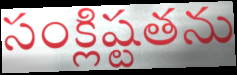
సంక్లిష్టతను